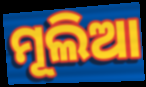
ମୂଲିଆ